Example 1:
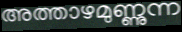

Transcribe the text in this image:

അത്താഴമുണ്ണുന്ന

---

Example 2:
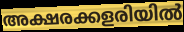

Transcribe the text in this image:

അക്ഷരക്കളരിയിൽ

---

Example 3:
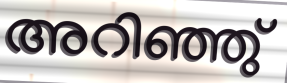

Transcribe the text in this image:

അറിഞ്ഞു്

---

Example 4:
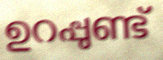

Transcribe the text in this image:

ഉറപ്പുണ്ട്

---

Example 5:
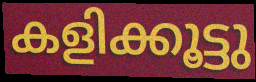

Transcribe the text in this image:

കളിക്കൂട്ടു